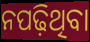
ନପଢ଼ିଥିବା